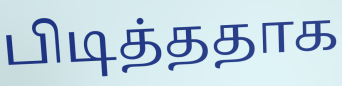
பிடித்ததாக